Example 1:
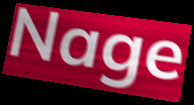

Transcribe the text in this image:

Nage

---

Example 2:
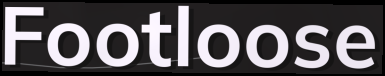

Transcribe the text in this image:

Footloose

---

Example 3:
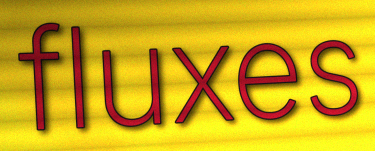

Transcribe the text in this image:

fluxes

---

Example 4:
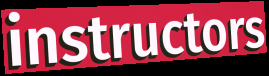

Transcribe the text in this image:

instructors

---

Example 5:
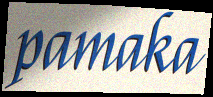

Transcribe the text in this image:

pamaka